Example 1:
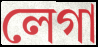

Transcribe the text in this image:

লেগা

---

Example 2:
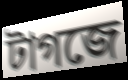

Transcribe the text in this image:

টাগজে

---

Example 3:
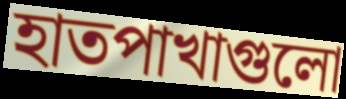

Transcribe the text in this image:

হাতপাখাগুলো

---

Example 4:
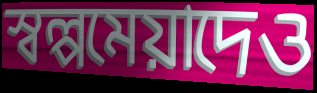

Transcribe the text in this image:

স্বল্পমেয়াদেও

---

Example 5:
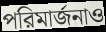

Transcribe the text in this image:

পরিমার্জনাও